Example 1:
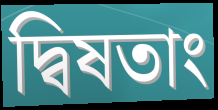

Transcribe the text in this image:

দ্বিষতাং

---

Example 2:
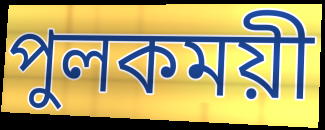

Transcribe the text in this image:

পুলকময়ী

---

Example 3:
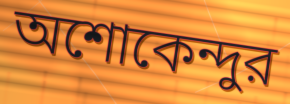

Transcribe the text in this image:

অশোকেন্দুর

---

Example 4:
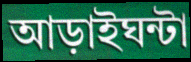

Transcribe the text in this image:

আড়াইঘন্টা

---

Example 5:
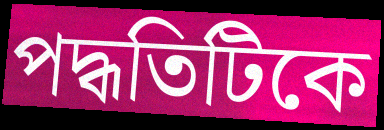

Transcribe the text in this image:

পদ্ধতিটিকে